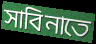
সাবিনাতে